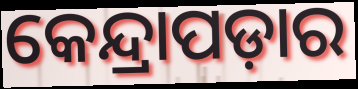
କେନ୍ଦ୍ରାପଡ଼ାର